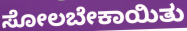
ಸೋಲಬೇಕಾಯಿತು